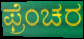
ಫ್ರೆಂಚರ